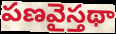
పణవైస్తథా